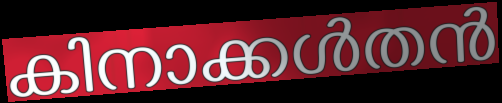
കിനാക്കൾതൻ